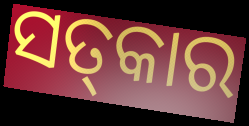
ସତ୍‌କାର